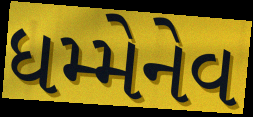
ધમ્મેનેવ